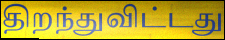
திறந்துவிட்டது